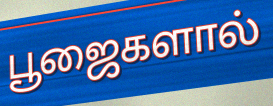
பூஜைகளால்